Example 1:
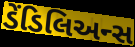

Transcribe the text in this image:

ડેંડિલિઅન્સ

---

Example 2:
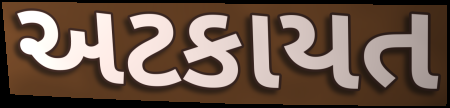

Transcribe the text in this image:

અટકાયત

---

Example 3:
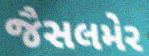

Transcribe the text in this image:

જૈસલમેર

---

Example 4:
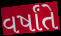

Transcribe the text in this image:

વર્ષાંતે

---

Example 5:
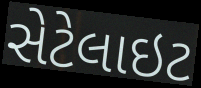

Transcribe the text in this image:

સેટેલાઇટ